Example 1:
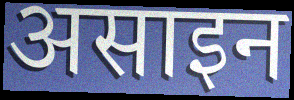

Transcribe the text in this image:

असाइन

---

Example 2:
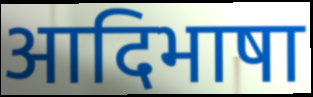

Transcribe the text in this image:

आदिभाषा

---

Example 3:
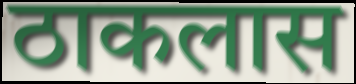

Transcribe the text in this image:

ठाकलास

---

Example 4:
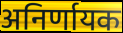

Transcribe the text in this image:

अनिर्णायक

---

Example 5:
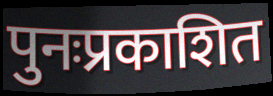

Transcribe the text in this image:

पुनःप्रकाशित